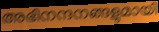
അഭിനന്ദനങ്ങളുമായി